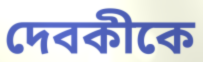
দেবকীকে